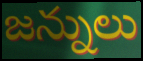
జన్నులు